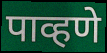
पाव्हणे